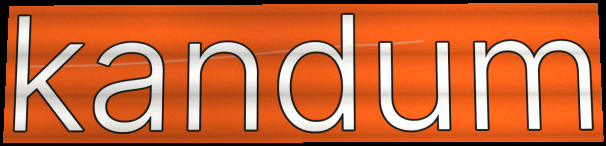
kandum